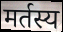
मर्तस्य